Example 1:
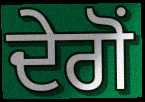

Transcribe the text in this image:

ਦੇਗੋਂ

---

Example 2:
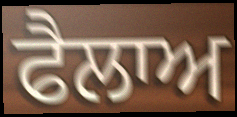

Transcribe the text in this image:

ਫੈਲਾਅ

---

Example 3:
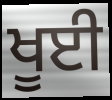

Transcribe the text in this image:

ਖੂਈ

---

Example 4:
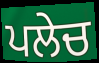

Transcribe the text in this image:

ਪਲੇਚ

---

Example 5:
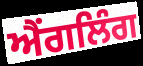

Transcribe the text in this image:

ਐਂਗਲਿੰਗ